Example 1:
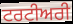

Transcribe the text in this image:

ਟਰਟੀਅਰੀ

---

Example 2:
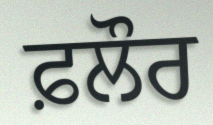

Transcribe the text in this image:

ਫ਼ਲੌਰ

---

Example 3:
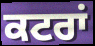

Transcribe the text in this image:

ਕਟਰਾਂ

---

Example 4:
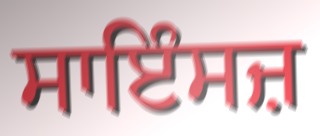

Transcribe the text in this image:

ਸਾਇੰਸਜ਼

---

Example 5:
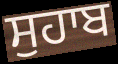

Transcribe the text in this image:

ਸੁਹਾਬ